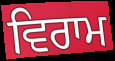
ਵਿਰਾਮ